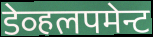
डेव्हलपमेन्ट